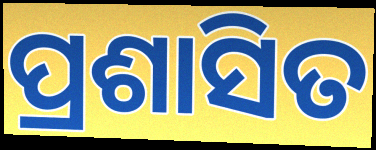
ପ୍ରଶାସିତ